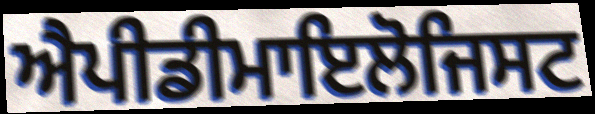
ਐਪੀਡੀਮਾਇਲੋਜਿਸਟ